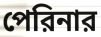
পেরিনার